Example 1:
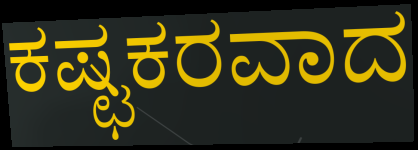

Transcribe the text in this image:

ಕಷ್ಟಕರವಾದ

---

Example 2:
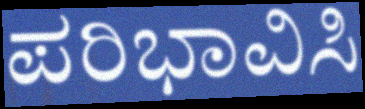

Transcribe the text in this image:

ಪರಿಭಾವಿಸಿ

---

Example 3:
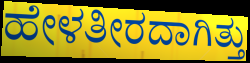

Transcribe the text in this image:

ಹೇಳತೀರದಾಗಿತ್ತು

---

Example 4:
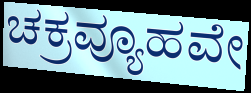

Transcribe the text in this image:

ಚಕ್ರವ್ಯೂಹವೇ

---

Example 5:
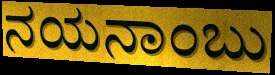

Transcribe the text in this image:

ನಯನಾಂಬು